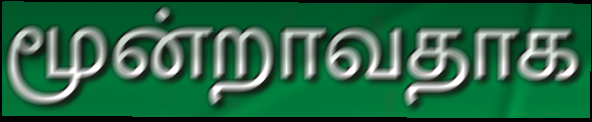
மூன்றாவதாக